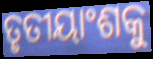
ତୃତୀୟାଂଶକୁ